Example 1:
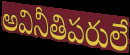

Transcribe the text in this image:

అవినీతిపరులే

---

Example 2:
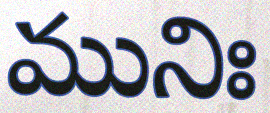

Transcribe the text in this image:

మునిః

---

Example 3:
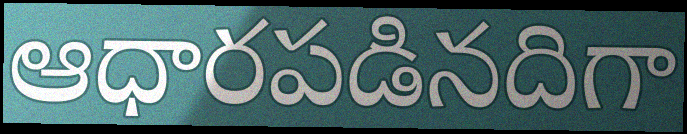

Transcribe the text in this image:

ఆధారపడినదిగా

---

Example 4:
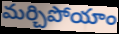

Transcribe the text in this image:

మర్చిపోయాం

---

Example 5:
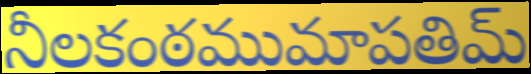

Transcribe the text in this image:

నీలకంఠముమాపతిమ్